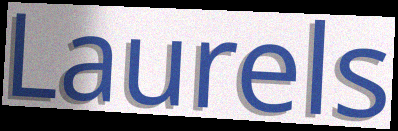
Laurels